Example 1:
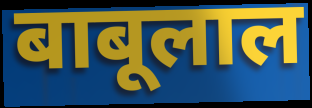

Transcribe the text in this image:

बाबूलाल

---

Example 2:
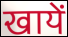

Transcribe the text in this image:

खायें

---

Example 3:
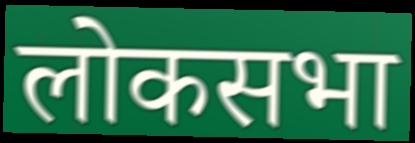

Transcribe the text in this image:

लोकसभा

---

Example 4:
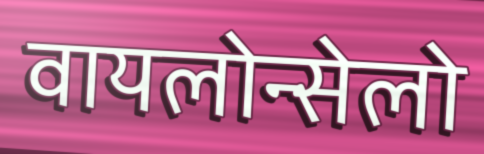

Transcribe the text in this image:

वायलोन्सेलो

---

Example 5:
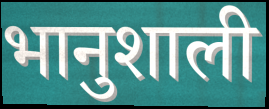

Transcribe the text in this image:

भानुशाली